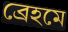
ব্রেহমে